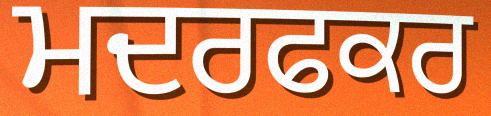
ਮਦਰਫਕਰ